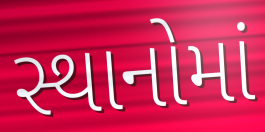
સ્થાનોમાં